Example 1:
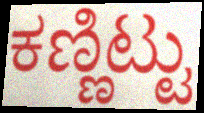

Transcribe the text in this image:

ಕಣ್ಣಿಟ್ಟು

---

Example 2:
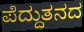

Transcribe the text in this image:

ಪೆದ್ದುತನದ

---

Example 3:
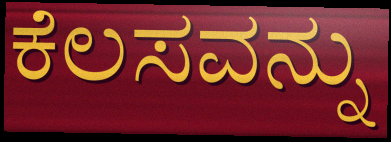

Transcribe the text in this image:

ಕೆಲಸವನ್ನು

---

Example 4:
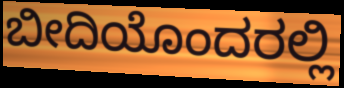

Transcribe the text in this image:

ಬೀದಿಯೊಂದರಲ್ಲಿ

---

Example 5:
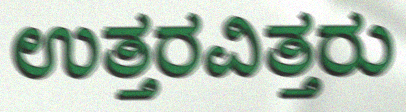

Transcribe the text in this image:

ಉತ್ತರವಿತ್ತರು